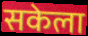
सकेला